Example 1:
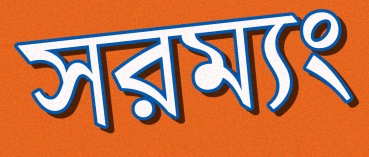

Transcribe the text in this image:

সরম্যং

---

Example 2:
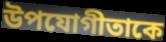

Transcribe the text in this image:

উপযোগীতাকে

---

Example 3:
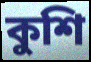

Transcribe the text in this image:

কুশি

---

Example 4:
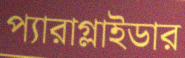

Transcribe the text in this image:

প্যারাগ্লাইডার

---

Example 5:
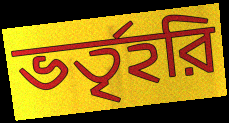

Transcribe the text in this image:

ভর্তৃহরি